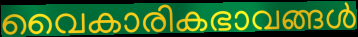
വൈകാരികഭാവങ്ങൾ